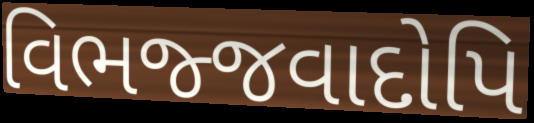
વિભજ્જવાદોપિ